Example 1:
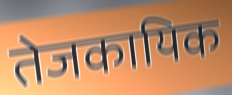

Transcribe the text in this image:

तेजकायिक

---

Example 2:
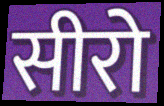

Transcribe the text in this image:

सीरो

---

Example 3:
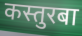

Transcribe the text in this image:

कस्तुरबा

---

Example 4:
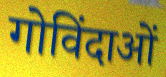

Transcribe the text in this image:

गोविंदाओं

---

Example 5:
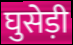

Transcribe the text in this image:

घुसेड़ी